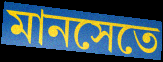
মানসেতে